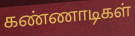
கண்ணாடிகள்